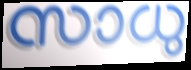
സാധു